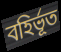
বহির্ভূত